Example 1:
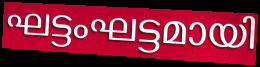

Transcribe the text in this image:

ഘട്ടംഘട്ടമായി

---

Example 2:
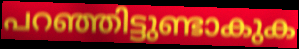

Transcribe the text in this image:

പറഞ്ഞിട്ടുണ്ടാകുക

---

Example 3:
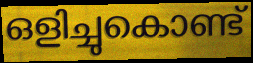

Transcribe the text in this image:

ഒളിച്ചുകൊണ്ട്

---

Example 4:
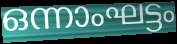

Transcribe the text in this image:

ഒന്നാംഘട്ടം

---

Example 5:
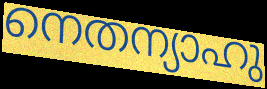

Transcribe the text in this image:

നെതന്യാഹു